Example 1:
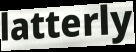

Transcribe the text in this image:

latterly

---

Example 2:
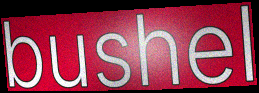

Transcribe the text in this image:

bushel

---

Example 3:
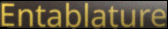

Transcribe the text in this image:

Entablature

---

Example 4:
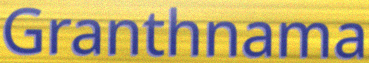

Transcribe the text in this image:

Granthnama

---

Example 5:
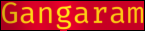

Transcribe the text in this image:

Gangaram